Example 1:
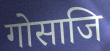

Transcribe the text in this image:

गोसाजि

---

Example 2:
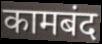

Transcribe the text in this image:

कामबंद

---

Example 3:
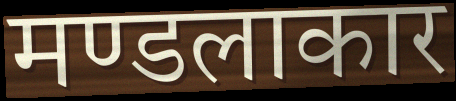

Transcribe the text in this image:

मण्डलाकार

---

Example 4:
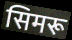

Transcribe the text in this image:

सिमरू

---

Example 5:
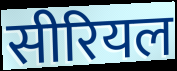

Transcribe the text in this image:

सीरियल